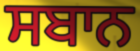
ਸਬਾਨ